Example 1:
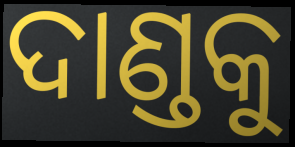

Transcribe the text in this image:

ଦାଣ୍ଡକୁ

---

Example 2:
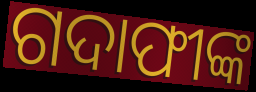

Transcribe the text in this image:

ଗଦାଫୀଙ୍କ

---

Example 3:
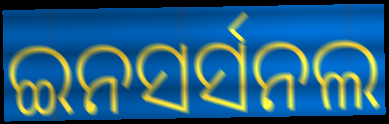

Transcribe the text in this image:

ଇନସର୍ସନଲ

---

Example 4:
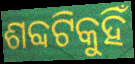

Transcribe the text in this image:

ଶବ୍ଦଟିକୁହିଁ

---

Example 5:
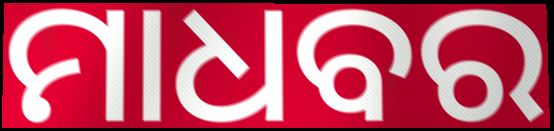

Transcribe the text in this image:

ମାଧବର